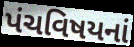
પંચવિષયનાં